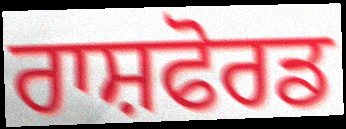
ਰਾਸ਼ਫੋਰਡ